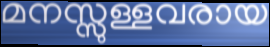
മനസ്സുള്ളവരായ